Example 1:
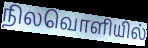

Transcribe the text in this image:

நிலவொளியில்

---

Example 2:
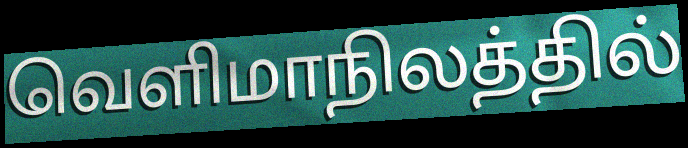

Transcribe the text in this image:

வெளிமாநிலத்தில்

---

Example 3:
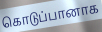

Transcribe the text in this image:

கொடுப்பானாக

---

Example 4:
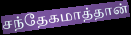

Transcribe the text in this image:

சந்தேகமாத்தான்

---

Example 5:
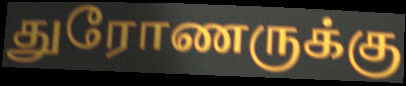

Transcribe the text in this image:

துரோணருக்கு